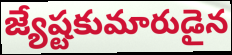
జ్యేష్టకుమారుడైన